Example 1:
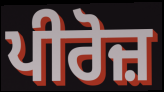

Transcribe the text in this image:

ਪੀਰੋਜ਼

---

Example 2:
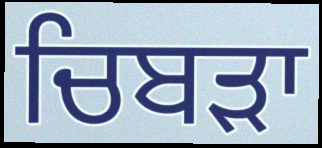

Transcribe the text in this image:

ਚਿਬੜਾ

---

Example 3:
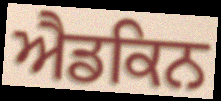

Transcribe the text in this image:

ਐਡਕਿਨ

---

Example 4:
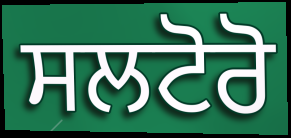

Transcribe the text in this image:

ਸਲਟੋਰੋ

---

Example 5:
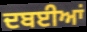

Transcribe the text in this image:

ਦਬਈਆਂ